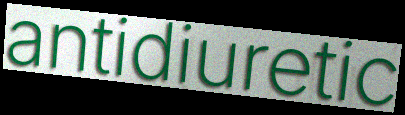
antidiuretic